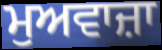
ਮੁਅਵਾਜ਼ਾ